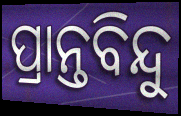
ପ୍ରାନ୍ତବିନ୍ଦୁ